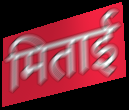
मिताई